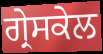
ਗ੍ਰੇਸਕੇਲ